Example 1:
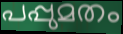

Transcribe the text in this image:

പപ്പുമതം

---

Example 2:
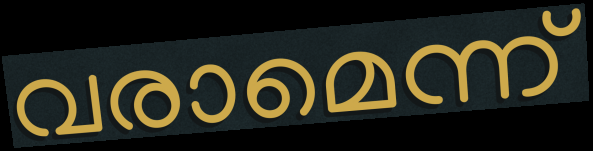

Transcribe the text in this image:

വരാമെന്ന്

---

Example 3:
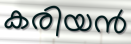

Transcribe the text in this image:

കരിയൻ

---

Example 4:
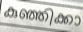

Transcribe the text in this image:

കുഞ്ഞിക്കാ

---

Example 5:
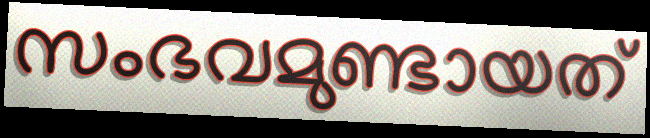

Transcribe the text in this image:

സംഭവമുണ്ടായത്